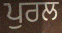
ਪੁਰਲ